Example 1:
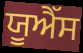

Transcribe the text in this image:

ਯੂਐੱਸ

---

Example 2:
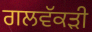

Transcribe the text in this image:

ਗਲਵੱਕਡ਼ੀ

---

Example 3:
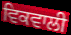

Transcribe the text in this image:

ਵਿਕਵਾਲੀ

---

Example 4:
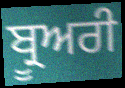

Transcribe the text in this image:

ਬ੍ਰੂਅਰੀ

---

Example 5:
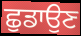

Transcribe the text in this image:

ਛੁਡਾਉਣ